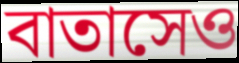
বাতাসেও